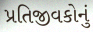
પ્રતિજીવકોનું